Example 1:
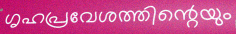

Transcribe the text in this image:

ഗൃഹപ്രവേശത്തിന്റെയും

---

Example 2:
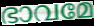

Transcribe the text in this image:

ഭാവമേ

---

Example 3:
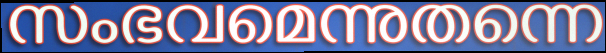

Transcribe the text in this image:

സംഭവമെന്നുതന്നെ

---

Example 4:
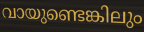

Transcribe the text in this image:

വായുണ്ടെങ്കിലും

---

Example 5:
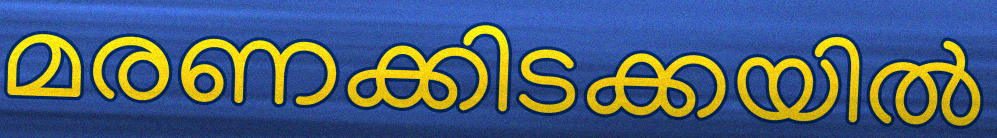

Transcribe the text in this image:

മരണക്കിടക്കയിൽ